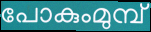
പോകുംമുമ്പ്